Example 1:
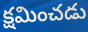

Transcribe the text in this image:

క్షమించడు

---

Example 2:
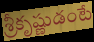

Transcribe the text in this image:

శ్రీకృష్ణుడంటే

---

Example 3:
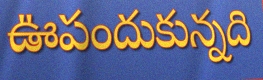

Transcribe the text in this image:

ఊపందుకున్నది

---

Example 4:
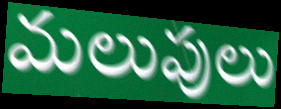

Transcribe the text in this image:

మలుపులు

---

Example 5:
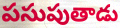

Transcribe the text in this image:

పసుపుతాడు